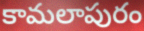
కామలాపురం